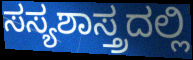
ಸಸ್ಯಶಾಸ್ತ್ರದಲ್ಲಿ